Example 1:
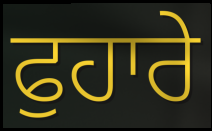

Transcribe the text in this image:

ਫੁਹਾਰੇ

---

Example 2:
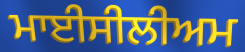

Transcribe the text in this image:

ਮਾਈਸੀਲੀਅਮ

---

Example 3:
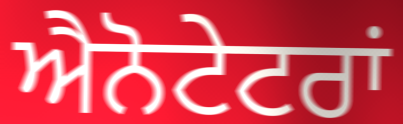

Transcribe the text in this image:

ਐਨੋਟੇਟਰਾਂ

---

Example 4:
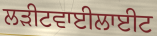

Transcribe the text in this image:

ਲੜੀਟਵਾਈਲਾਈਟ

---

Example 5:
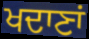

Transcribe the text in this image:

ਖਦਾਣਾਂ